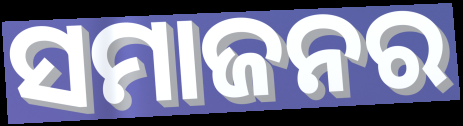
ସମାଜନର